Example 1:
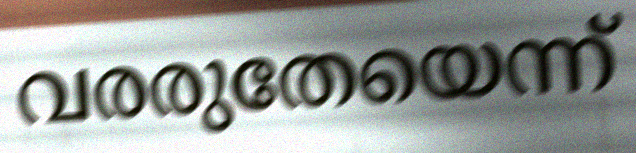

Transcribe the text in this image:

വരരുതേയെന്ന്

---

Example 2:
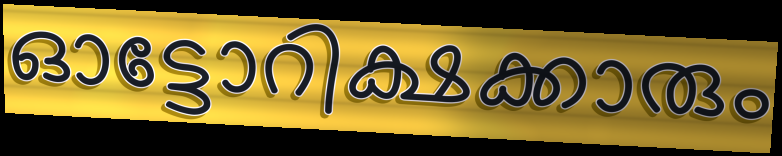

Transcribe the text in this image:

ഓട്ടോറിക്ഷക്കാരും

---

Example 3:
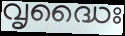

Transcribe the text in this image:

വൃദ്ധൈഃ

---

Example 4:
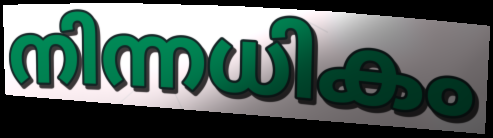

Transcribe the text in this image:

നിന്നധികം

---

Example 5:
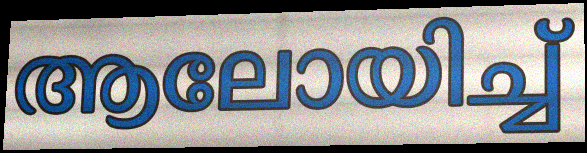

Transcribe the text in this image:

ആലോയിച്ച്